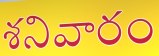
శనివారం